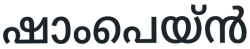
ഷാംപെയ്ൻ